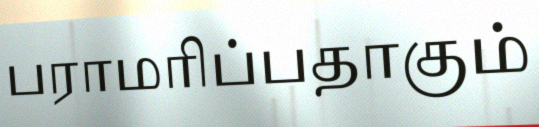
பராமரிப்பதாகும்